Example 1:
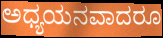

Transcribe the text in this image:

ಅಧ್ಯಯನವಾದರೂ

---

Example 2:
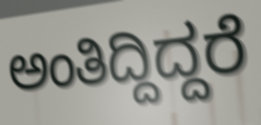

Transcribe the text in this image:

ಅಂತಿದ್ದಿದ್ದರೆ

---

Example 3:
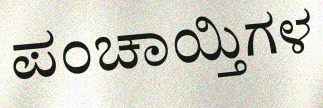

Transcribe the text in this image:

ಪಂಚಾಯ್ತಿಗಳ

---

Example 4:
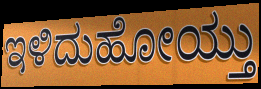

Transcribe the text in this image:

ಇಳಿದುಹೋಯ್ತು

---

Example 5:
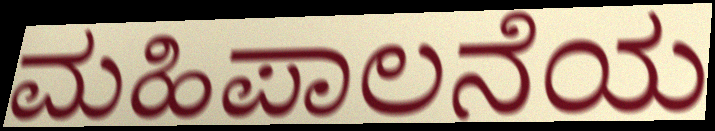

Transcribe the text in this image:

ಮಹಿಪಾಲನೆಯ